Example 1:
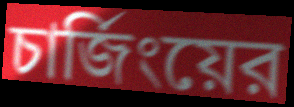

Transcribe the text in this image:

চার্জিংয়ের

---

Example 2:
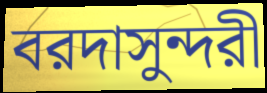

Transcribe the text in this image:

বরদাসুন্দরী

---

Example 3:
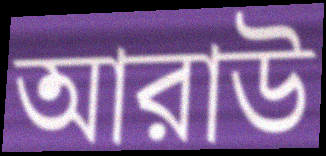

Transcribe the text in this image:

আরাউ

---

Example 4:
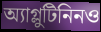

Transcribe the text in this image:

অ্যাগ্লুটিনিনও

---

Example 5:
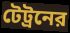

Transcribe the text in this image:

টেট্রনের